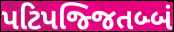
પટિપજ્જિતબ્બં